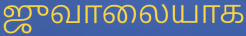
ஜுவாலையாக